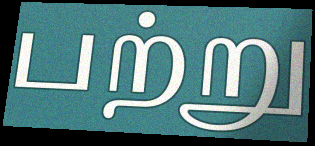
பற்று